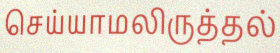
செய்யாமலிருத்தல்